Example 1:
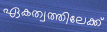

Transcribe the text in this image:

ഏകത്വത്തിലേക്ക്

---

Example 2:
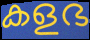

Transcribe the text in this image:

കളഭ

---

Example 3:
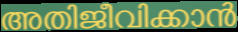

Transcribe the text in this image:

അതിജീവിക്കാൻ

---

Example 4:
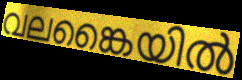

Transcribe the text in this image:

വലങ്കൈയിൽ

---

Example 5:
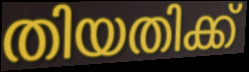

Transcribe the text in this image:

തിയതിക്ക്